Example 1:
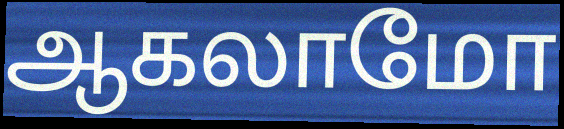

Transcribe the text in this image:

ஆகலாமோ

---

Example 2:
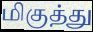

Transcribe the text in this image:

மிகுத்து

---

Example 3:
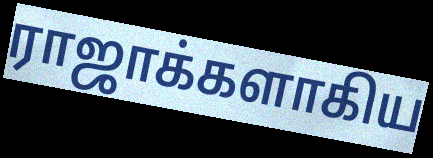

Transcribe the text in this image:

ராஜாக்களாகிய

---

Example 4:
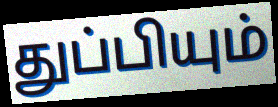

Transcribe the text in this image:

துப்பியும்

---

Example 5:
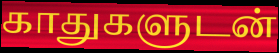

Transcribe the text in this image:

காதுகளுடன்